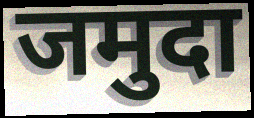
जमुदा